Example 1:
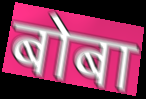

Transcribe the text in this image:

बोबा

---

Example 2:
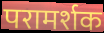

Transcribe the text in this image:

परामर्शक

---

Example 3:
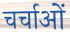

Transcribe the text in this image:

चर्चाओं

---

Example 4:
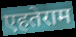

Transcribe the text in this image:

एहतेराम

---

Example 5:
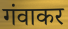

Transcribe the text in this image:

गंवाकर